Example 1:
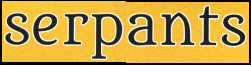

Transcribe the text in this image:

serpants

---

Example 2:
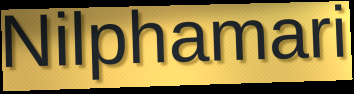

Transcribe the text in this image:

Nilphamari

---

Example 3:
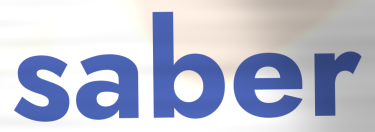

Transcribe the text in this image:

saber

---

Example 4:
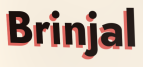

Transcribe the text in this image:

Brinjal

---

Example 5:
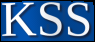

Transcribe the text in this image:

KSS